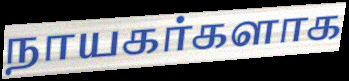
நாயகர்களாக